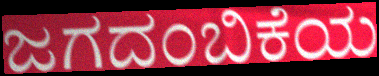
ಜಗದಂಬಿಕೆಯ